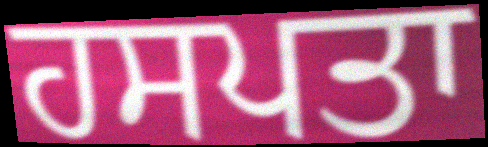
ਹਸਪਤਾ